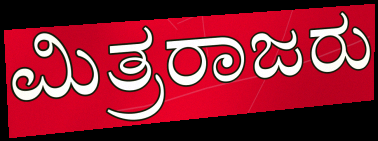
ಮಿತ್ರರಾಜರು